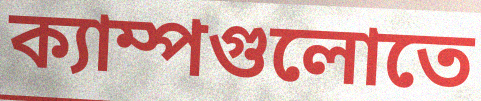
ক্যাম্পগুলোতে